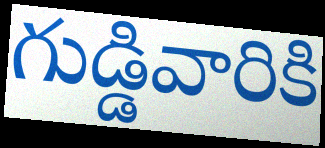
గుడ్డివారికి